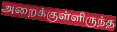
அறைக்குள்ளிருந்த